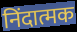
निंदात्मक